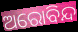
ଅରୋବିନ୍ଦ